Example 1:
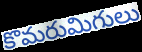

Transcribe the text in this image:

కొమరుమిగులు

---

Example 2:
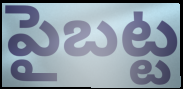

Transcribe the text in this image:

పైబట్ట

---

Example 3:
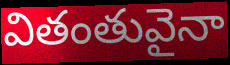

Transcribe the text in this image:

వితంతువైనా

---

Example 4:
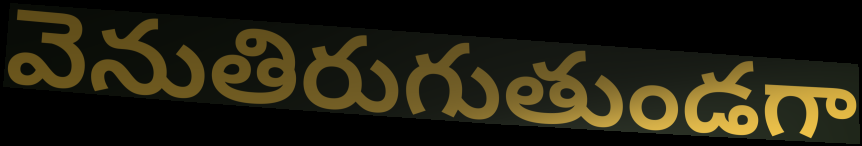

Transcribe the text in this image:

వెనుతిరుగుతుండగా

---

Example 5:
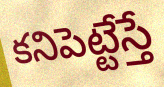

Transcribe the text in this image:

కనిపెట్టేస్తే